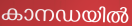
കാനഡയിൽ